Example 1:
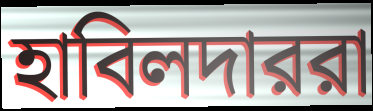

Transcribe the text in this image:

হাবিলদাররা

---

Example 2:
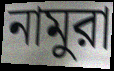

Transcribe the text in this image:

নামুরা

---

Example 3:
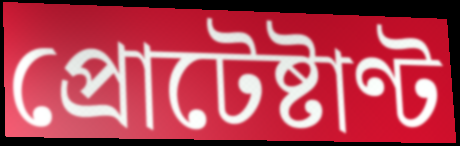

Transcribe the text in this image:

প্রোটেষ্টাণ্ট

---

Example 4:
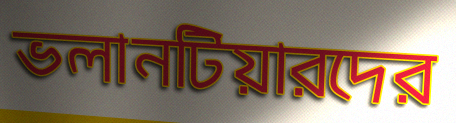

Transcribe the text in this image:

ভলানটিয়ারদের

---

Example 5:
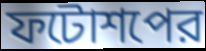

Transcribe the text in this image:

ফটোশপের